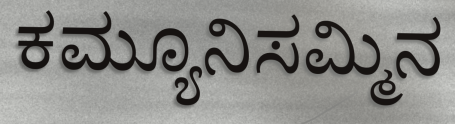
ಕಮ್ಯೂನಿಸಮ್ಮಿನ